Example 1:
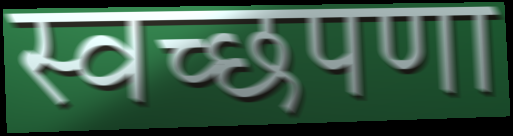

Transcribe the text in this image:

स्वच्छपणा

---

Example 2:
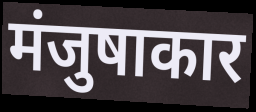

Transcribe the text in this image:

मंजुषाकार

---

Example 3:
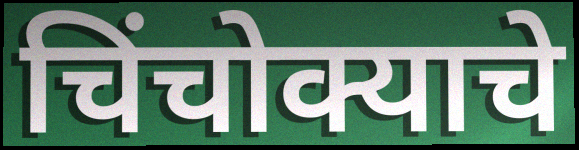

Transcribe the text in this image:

चिंचोक्याचे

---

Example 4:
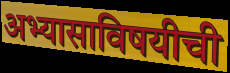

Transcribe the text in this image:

अभ्यासाविषयीची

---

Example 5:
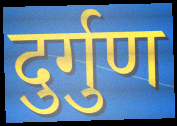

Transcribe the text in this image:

दुर्गुण